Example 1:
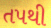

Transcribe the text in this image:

તપથી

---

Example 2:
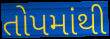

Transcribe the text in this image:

તોપમાંથી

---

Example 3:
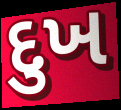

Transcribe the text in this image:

દુખ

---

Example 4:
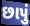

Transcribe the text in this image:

છાપું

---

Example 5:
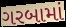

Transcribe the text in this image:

ગરબામાં